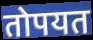
तोपयत